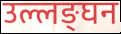
उल्लङ्घन